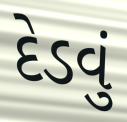
દેડવું